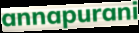
annapurani